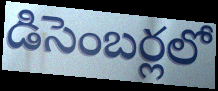
డిసెంబర్లలో